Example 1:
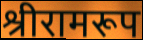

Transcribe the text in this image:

श्रीरामरूप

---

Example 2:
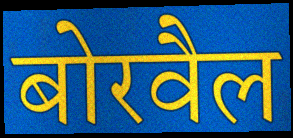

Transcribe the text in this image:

बोरवैल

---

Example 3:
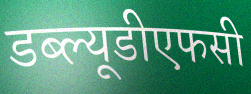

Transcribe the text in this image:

डब्ल्यूडीएफसी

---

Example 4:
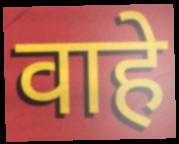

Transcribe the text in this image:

वाहे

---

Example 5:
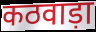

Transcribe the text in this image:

कठवाड़ा